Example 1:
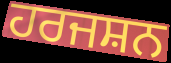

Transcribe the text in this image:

ਹਰਜਸ਼ਨ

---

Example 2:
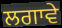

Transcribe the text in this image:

ਲਗਾਵੇ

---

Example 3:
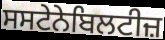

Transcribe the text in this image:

ਸਸਟੇਨੇਬਿਲਟੀਜ਼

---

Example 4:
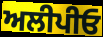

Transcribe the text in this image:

ਅਲੀਪੀਓ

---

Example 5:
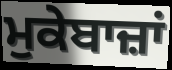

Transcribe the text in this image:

ਮੁਕੇਬਾਜ਼ਾਂ